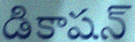
డికాషన్